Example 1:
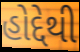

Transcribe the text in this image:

હોદ્દેથી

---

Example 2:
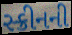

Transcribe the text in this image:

સ્ક્રીનની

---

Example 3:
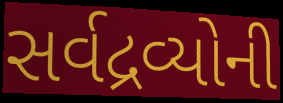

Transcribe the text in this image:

સર્વદ્રવ્યોની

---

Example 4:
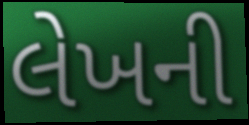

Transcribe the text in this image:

લેખની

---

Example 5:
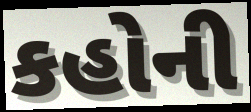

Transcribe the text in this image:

કહોની